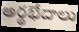
అర్థభేదాలు